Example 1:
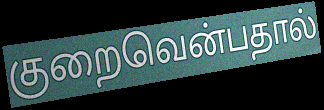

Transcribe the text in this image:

குறைவென்பதால்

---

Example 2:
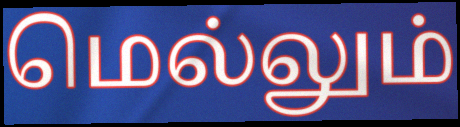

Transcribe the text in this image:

மெல்லும்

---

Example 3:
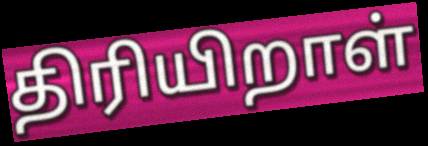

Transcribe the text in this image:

திரியிறாள்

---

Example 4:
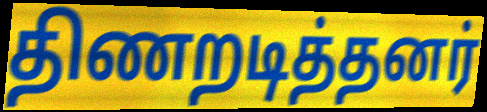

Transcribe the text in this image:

திணறடித்தனர்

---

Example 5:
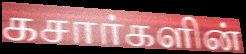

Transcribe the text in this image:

கசார்களின்